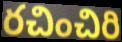
రచించిరి